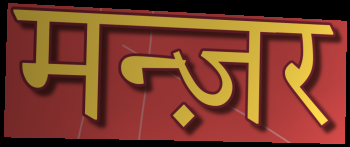
मन्ज़र